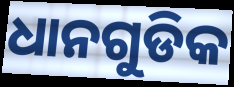
ଧାନଗୁଡିକ